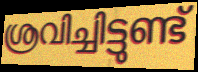
ശ്രവിച്ചിട്ടുണ്ട്